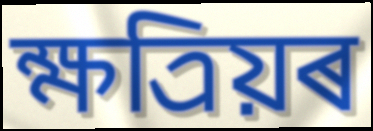
ক্ষত্ৰিয়ৰ